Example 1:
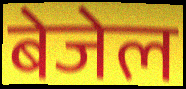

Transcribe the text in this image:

बेजेल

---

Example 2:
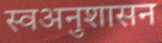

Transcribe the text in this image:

स्वअनुशासन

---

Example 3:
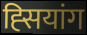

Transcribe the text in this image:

ह्सियांग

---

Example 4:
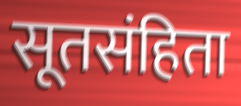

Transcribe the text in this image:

सूतसंहिता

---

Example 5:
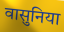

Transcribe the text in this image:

वासुनिया